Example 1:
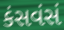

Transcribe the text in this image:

કંસવંસં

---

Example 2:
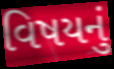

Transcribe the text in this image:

વિષયનું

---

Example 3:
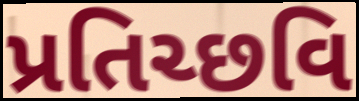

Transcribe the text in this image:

પ્રતિચ્છવિ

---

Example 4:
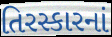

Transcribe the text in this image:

તિરસ્કારનાં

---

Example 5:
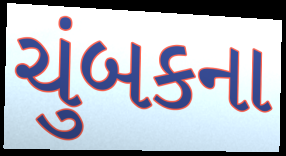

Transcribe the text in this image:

ચુંબકના